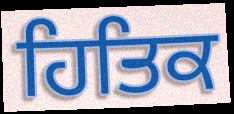
ਹਿਤਿਕ